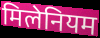
मिलेनियम